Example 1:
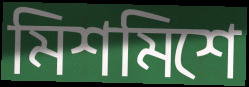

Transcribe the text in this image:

মিশমিশে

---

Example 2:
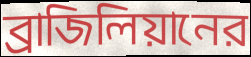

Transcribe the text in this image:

ব্রাজিলিয়ানের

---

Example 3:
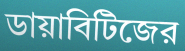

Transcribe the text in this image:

ডায়াবিটিজের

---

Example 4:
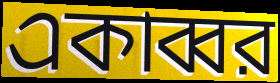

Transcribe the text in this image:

একাব্বর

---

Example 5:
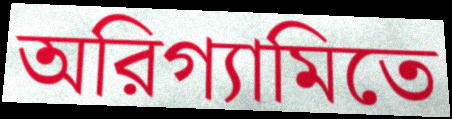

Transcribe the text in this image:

অরিগ্যামিতে